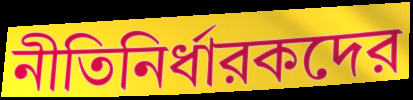
নীতিনির্ধারকদের